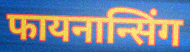
फायनान्सिंग